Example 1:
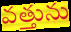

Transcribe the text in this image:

వత్తును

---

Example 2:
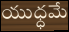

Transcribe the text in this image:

యుధ్ధమే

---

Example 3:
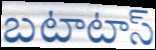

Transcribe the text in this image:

బటాటాస్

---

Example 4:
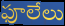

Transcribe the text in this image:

ఫూలేలు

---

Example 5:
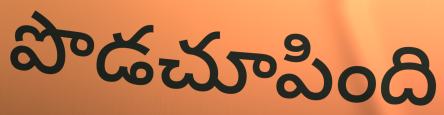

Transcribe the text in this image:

పొడచూపింది